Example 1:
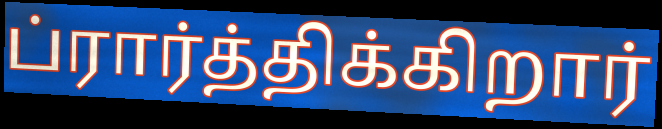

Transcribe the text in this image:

ப்ரார்த்திக்கிறார்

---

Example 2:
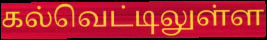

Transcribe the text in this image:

கல்வெட்டிலுள்ள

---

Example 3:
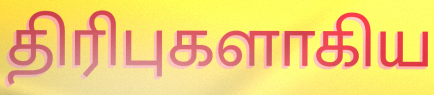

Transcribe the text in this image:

திரிபுகளாகிய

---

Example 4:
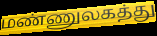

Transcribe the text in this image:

மண்ணுலகத்து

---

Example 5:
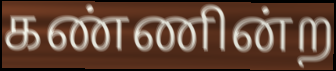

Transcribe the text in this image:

கண்ணின்ற